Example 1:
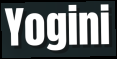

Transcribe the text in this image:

Yogini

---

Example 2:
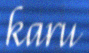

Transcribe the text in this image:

karu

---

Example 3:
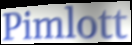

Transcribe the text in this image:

Pimlott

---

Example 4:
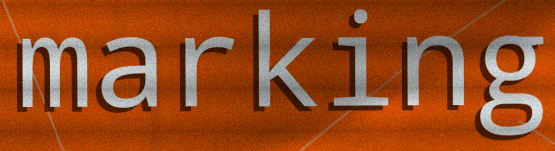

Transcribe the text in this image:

marking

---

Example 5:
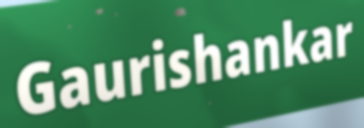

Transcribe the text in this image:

Gaurishankar